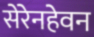
सेरेनहेवन